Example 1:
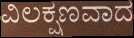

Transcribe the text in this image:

ವಿಲಕ್ಷಣವಾದ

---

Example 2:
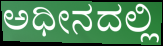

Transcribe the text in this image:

ಅಧೀನದಲ್ಲಿ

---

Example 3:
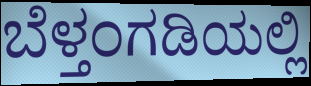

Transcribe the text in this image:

ಬೆಳ್ತಂಗಡಿಯಲ್ಲಿ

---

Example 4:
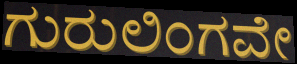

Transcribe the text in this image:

ಗುರುಲಿಂಗವೇ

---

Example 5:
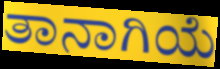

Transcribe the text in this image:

ತಾನಾಗಿಯೆ